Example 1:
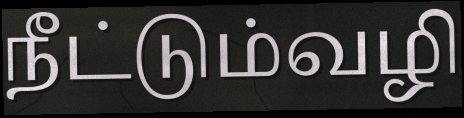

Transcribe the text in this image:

நீட்டும்வழி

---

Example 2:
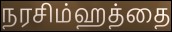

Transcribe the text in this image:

நரசிம்ஹத்தை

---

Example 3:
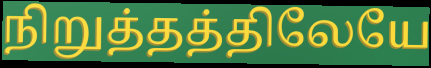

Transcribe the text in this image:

நிறுத்தத்திலேயே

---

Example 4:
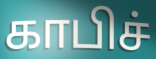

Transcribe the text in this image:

காபிச்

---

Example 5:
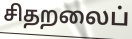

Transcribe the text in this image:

சிதறலைப்